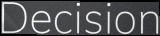
Decision